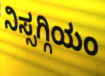
ನಿಸ್ಸಗ್ಗಿಯಂ